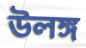
উলঙ্গ